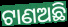
ଟାଣଅଛି